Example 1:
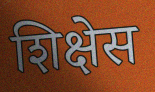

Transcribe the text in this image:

शिक्षेस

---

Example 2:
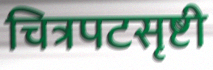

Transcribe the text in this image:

चित्रपटसृष्टी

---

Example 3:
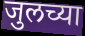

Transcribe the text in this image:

जुलच्या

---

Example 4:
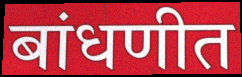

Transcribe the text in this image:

बांधणीत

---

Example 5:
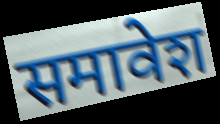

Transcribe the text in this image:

समावेश